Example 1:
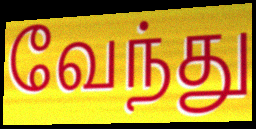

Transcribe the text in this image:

வேந்து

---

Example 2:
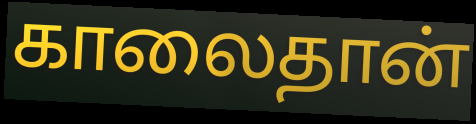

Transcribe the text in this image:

காலைதான்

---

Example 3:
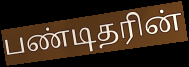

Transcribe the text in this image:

பண்டிதரின்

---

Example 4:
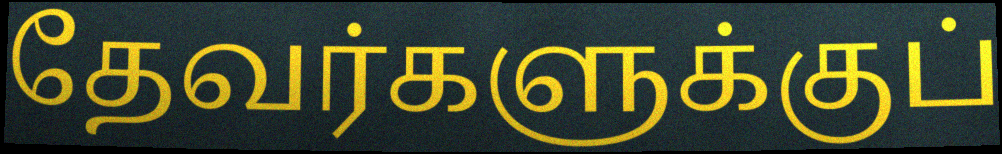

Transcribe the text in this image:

தேவர்களுக்குப்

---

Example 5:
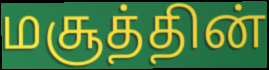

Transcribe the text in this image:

மசூத்தின்